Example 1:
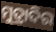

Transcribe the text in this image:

ମୁଦ୍ରାଦିର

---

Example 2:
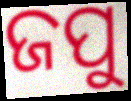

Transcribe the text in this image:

ଜପୁ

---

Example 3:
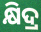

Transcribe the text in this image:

କ୍ଷିଦ୍ର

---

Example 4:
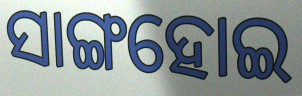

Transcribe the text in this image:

ସାଙ୍ଗହୋଇ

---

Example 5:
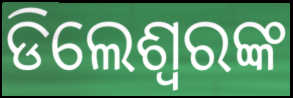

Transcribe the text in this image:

ଡିଲେଶ୍ଵରଙ୍କ